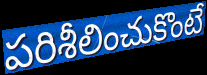
పరిశీలించుకొంటే